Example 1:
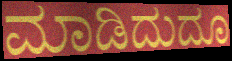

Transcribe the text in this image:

ಮಾಡಿದುದೂ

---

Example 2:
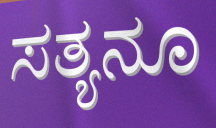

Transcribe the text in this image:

ಸತ್ಯನೂ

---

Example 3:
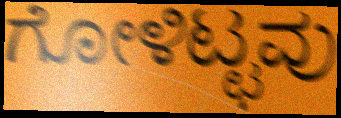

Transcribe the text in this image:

ಗೋಳಿಟ್ಟವು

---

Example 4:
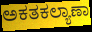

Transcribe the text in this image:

ಅಕತಕಲ್ಯಾಣಾ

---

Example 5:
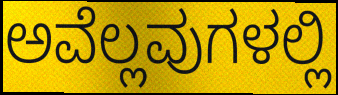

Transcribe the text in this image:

ಅವೆಲ್ಲವುಗಳಲ್ಲಿ